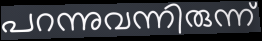
പറന്നുവന്നിരുന്ന്